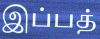
இப்பத்